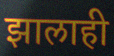
झालाही